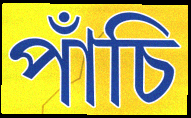
পাঁচি